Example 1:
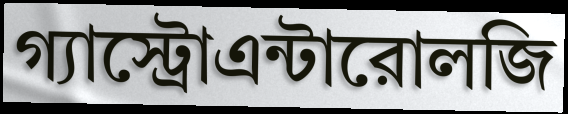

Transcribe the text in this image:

গ্যাস্ট্রোএন্টারোলজি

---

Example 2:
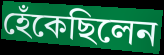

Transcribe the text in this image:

হেঁকেছিলেন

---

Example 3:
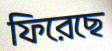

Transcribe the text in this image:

ফিরেছে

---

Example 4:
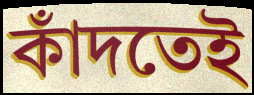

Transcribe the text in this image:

কাঁদতেই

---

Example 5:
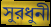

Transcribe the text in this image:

সুরধুনী